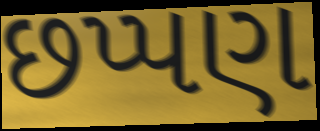
છપ્પણ